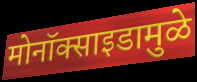
मोनॉक्साइडामुळे